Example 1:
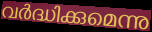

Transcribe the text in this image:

വർദ്ധിക്കുമെന്നു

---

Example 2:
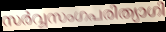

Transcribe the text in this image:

സർവ്വസംഗപരിത്യാഗി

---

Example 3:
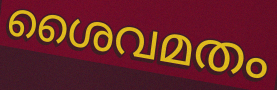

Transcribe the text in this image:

ശൈവമതം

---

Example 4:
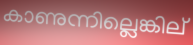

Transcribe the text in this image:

കാണുന്നില്ലെങ്കില്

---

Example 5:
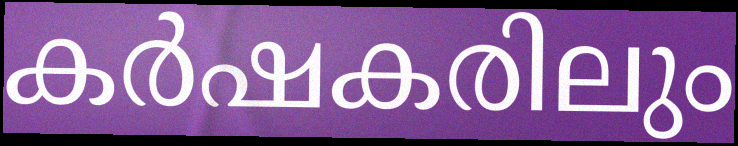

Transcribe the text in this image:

കർഷകരിലും